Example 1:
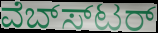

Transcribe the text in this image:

ವೆಬ್ಸ್‍ಟರ್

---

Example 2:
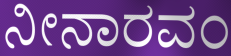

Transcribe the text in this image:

ನೀನಾರವಂ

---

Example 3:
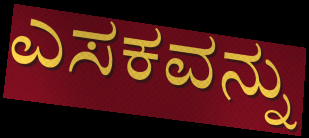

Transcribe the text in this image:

ಎಸಕವನ್ನು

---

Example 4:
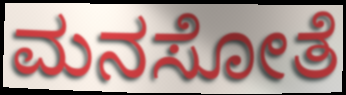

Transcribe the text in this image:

ಮನಸೋತೆ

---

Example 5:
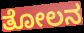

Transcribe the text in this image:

ತೋಲನ